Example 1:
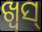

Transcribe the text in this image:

ଖ୍ୱସ୍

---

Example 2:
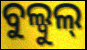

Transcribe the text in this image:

ବୁଲ୍ବୁଲ୍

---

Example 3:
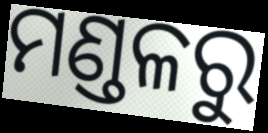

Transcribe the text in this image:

ମଣ୍ଡଳରୁ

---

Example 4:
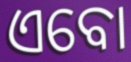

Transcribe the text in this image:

ଏବୋ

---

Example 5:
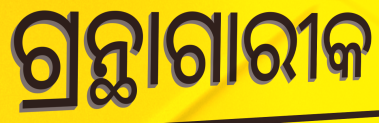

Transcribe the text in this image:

ଗ୍ରନ୍ଥାଗାରୀକ